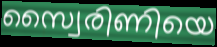
സ്വൈരിണിയെ